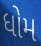
ધોમ